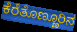
ಕೆರೆತೊಣ್ಣೂರಿನ